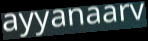
ayyanaarv